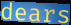
dears